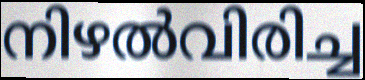
നിഴൽവിരിച്ച